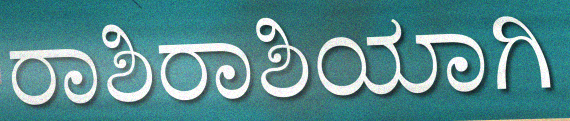
ರಾಶಿರಾಶಿಯಾಗಿ